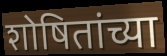
शोषितांच्या